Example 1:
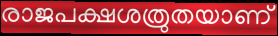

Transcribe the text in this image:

രാജപക്ഷശത്രുതയാണ്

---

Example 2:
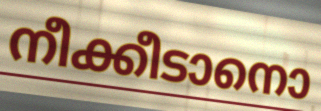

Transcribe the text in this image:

നീക്കീടാനൊ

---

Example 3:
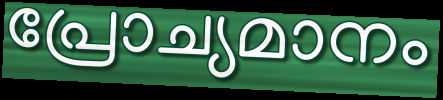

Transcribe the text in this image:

പ്രോച്യമാനം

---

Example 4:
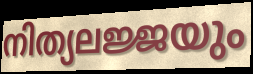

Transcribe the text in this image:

നിത്യലജ്ജയും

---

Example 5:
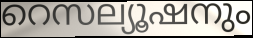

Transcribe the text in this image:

റെസല്യൂഷനും